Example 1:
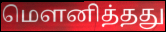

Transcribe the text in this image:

மௌனித்தது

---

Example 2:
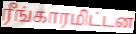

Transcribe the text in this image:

ரீங்காரமிட்டன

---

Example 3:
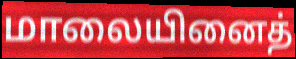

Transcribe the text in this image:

மாலையினைத்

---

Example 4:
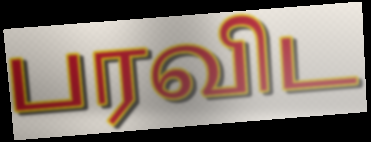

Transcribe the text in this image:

பரவிட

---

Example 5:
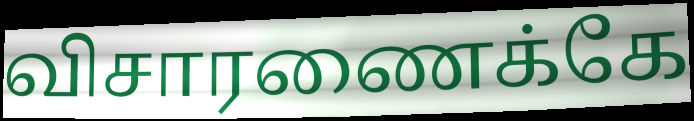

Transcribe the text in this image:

விசாரணைக்கே